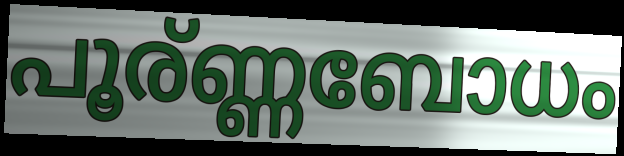
പൂര്ണ്ണബോധം